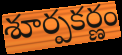
శూర్పకర్ణం